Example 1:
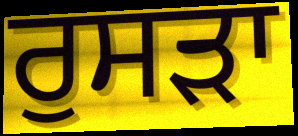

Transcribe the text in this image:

ਰੁਸੜਾ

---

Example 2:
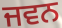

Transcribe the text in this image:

ਜਵਨ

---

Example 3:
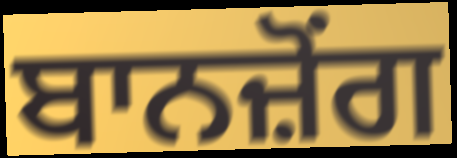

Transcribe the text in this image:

ਬਾਨਜ਼ੋਂਗ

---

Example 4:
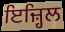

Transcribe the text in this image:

ਇਜ਼੍ਹਿਲ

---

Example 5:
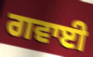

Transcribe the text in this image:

ਗਵਾਈ